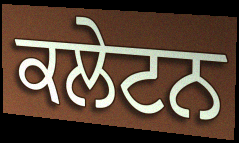
ਕਲੇਟਨ